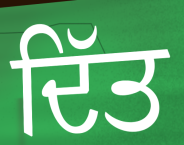
ਦਿੱਤ